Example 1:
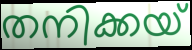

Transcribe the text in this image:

തനിക്കയ്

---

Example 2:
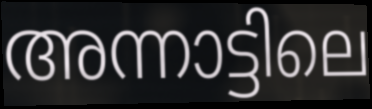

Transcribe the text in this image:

അന്നാട്ടിലെ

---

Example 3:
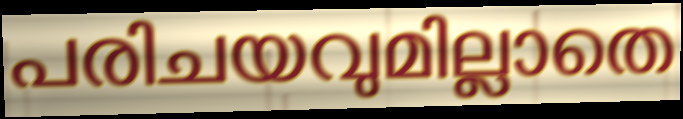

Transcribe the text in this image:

പരിചയവുമില്ലാതെ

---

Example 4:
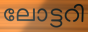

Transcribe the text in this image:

ലോട്ടറി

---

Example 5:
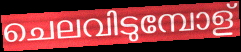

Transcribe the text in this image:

ചെലവിടുമ്പോള്